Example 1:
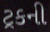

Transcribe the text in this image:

ટ્રકની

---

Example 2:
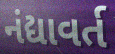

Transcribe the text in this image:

નંદ્યાવર્ત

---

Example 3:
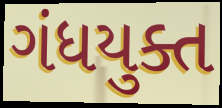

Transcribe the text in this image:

ગંધયુક્ત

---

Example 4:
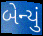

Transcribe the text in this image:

બેન્યું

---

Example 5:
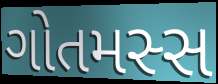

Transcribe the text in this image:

ગોતમસ્સ